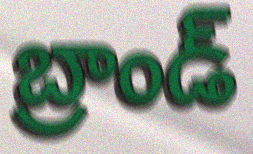
బ్రాండ్